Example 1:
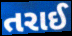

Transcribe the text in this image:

તરાઈ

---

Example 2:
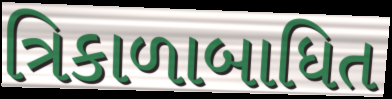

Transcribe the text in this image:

ત્રિકાળાબાધિત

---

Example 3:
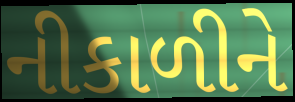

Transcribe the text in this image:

નીકાળીને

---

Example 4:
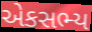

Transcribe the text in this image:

એકસભ્ય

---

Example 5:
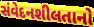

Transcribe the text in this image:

સંવેદનશીલતાનો